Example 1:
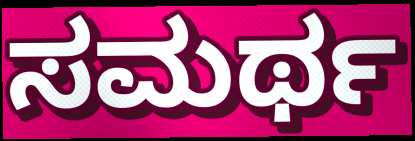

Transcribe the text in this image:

ಸಮರ್ಥ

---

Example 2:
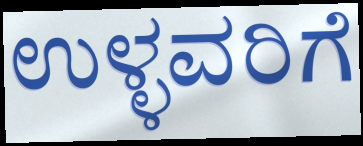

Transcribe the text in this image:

ಉಳ್ಳವರಿಗೆ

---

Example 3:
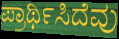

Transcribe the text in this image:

ಪ್ರಾರ್ಥಿಸಿದೆವು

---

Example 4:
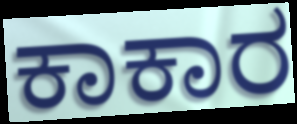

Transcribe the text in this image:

ಕಾಕಾರ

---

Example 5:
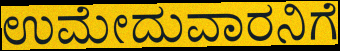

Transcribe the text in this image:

ಉಮೇದುವಾರನಿಗೆ